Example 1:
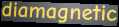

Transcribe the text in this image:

diamagnetic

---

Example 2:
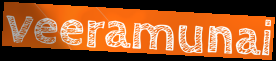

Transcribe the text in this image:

veeramunai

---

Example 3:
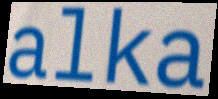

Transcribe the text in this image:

alka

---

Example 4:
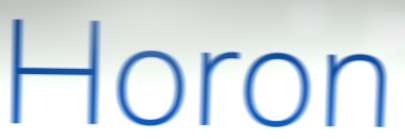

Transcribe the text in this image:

Horon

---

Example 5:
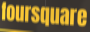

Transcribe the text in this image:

foursquare